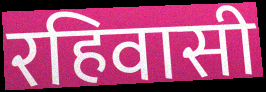
रहिवासी